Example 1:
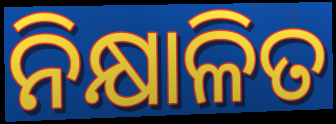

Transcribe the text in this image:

ନିକ୍ଷାଳିତ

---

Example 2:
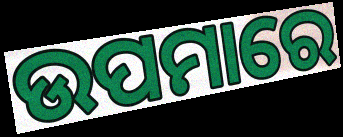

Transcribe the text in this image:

ଉପମାରେ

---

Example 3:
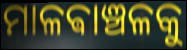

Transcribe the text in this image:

ମାଳଵାଞ୍ଚଳକୁ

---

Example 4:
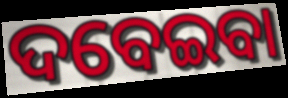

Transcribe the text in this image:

ଦବେଇବା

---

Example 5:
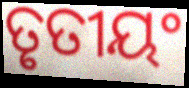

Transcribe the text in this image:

ତୃତୀୟଂ